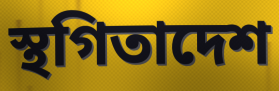
স্থগিতাদেশ